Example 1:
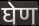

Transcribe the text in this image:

घेण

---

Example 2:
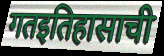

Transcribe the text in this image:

गतइतिहासाची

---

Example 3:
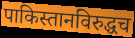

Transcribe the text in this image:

पाकिस्तानविरुद्धच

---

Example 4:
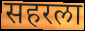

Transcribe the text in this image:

सहरला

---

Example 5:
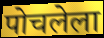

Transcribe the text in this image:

पोचलेला